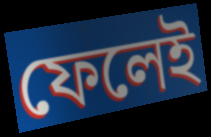
ফেলেই